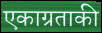
एकाग्रताकी